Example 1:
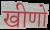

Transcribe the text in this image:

खीणो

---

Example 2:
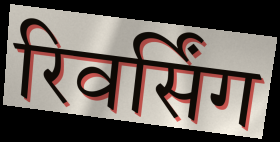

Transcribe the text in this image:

रिवर्सिंग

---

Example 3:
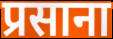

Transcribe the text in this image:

प्रसाना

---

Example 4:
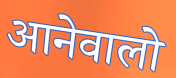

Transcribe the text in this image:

आनेवालो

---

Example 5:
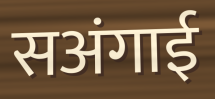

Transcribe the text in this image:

सअंगाई